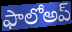
ఫాలోఅప్